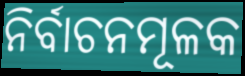
ନିର୍ବାଚନମୂଳକ